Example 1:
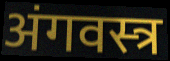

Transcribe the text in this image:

अंगवस्त्र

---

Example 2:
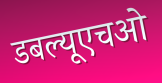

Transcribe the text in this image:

डबल्यूएचओ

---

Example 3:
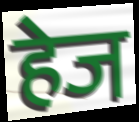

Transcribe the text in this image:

हेज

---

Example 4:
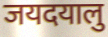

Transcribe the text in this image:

जयदयालु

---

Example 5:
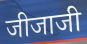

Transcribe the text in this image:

जीजाजी